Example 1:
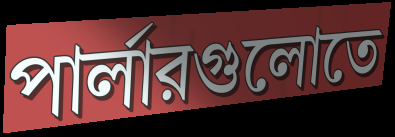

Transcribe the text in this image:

পার্লারগুলোতে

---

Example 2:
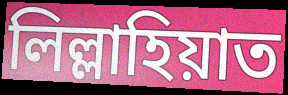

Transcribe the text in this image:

লিল্লাহিয়াত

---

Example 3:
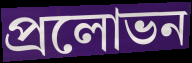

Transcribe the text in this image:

প্রলোভন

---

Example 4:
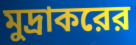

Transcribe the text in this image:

মুদ্রাকরের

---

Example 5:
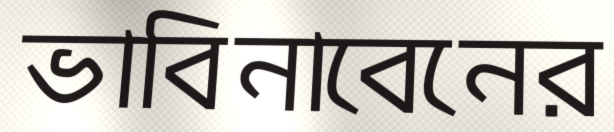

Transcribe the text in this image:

ভাবিনাবেনের